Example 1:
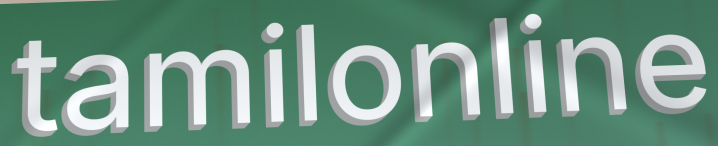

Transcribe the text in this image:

tamilonline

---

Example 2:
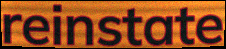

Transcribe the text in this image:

reinstate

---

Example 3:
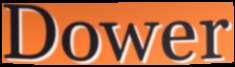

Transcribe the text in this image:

Dower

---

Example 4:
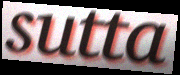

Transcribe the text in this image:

sutta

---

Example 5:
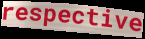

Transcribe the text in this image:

respective